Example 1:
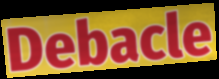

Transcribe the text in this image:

Debacle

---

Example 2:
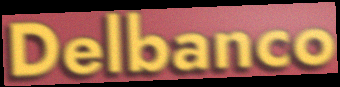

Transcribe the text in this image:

Delbanco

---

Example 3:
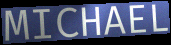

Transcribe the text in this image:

MICHAEL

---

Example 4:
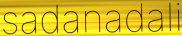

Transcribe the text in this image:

sadanadali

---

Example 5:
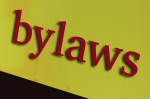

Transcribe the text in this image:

bylaws